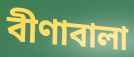
বীণাবালা